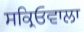
ਸਕ੍ਰਿਓਵਾਲਾ